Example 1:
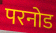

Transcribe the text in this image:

परनोड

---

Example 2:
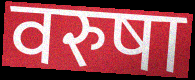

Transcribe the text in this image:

वरुषा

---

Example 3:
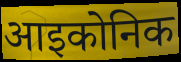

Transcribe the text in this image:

आइकोनिक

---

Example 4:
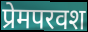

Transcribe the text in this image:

प्रेमपरवश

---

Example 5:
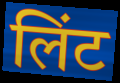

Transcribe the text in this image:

लिंट